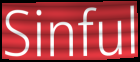
Sinful